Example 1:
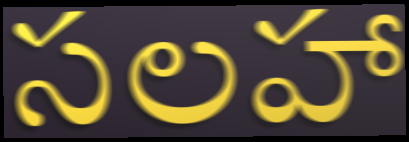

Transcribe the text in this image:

సలహా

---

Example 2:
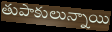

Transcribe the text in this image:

తుపాకులున్నాయి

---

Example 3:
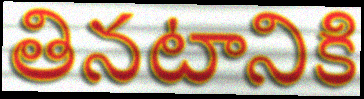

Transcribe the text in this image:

తినటానికి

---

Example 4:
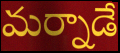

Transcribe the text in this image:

మర్నాడే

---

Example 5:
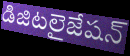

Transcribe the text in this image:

డిజిటలైజేషన్